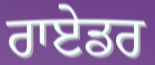
ਰਾਏਡਰ